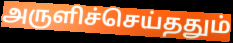
அருளிச்செய்ததும்